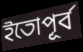
ইতোপূর্ব